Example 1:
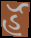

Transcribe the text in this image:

ર્હૅ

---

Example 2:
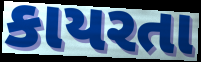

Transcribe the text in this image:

કાયરતા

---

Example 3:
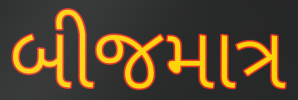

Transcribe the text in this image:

બીજમાત્ર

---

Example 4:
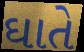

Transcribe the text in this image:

ઘાતે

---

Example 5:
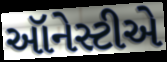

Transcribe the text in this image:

ઑનેસ્ટીએ